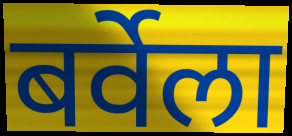
बर्वेला